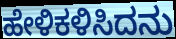
ಹೇಳಿಕಳಿಸಿದನು